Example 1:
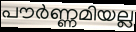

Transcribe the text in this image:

പൗർണ്ണമിയല്ല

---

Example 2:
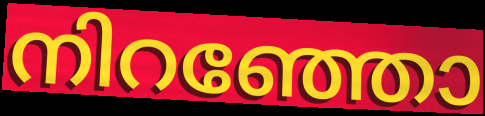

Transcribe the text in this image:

നിറഞ്ഞോ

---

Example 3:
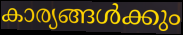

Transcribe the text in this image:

കാര്യങ്ങൾക്കും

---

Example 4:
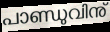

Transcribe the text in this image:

പാണ്ഡുവിനു്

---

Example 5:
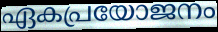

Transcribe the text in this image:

ഏകപ്രയോജനം